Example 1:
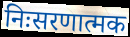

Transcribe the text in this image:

निःसरणात्मक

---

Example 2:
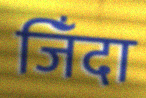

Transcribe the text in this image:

जिँदा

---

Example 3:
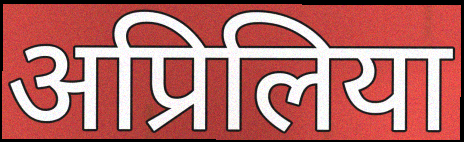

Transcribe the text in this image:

अप्रिलिया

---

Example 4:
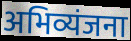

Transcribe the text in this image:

अभिव्यंजना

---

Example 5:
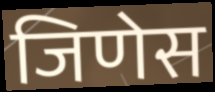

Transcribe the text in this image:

जिणेस